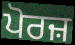
ਪੋਰਜ਼